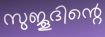
സുജൂദിന്റെ